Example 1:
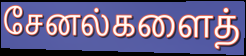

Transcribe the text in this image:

சேனல்களைத்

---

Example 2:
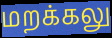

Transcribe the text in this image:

மறக்கலு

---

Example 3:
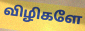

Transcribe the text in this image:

விழிகளே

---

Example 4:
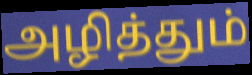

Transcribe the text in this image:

அழித்தும்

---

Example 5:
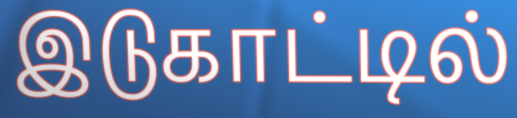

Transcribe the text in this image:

இடுகாட்டில்